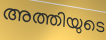
അത്തിയുടെ